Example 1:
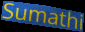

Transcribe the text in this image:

Sumathi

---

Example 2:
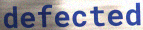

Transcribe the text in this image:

defected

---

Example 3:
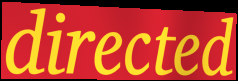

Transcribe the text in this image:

directed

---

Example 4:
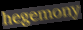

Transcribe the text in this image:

hegemony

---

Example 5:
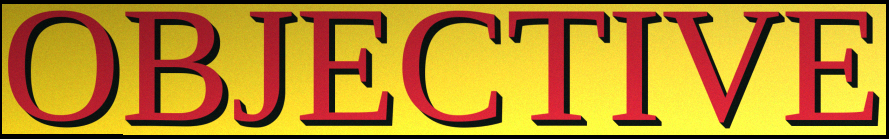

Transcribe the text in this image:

OBJECTIVE